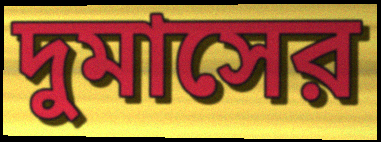
দুমাসের